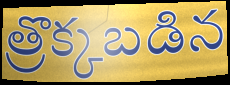
త్రొక్కబడిన